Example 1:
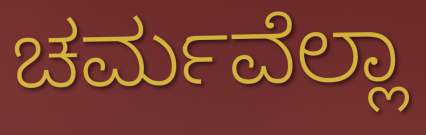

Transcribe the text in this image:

ಚರ್ಮವೆಲ್ಲಾ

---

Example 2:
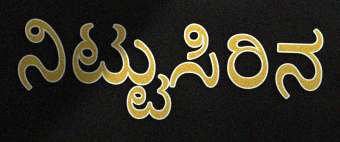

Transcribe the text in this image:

ನಿಟ್ಟುಸಿರಿನ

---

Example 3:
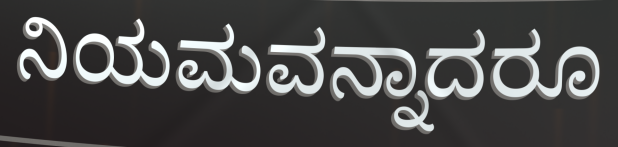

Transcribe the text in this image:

ನಿಯಮವನ್ನಾದರೂ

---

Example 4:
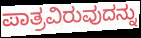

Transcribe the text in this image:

ಪಾತ್ರವಿರುವುದನ್ನು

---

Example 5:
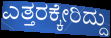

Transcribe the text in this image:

ಎತ್ತರಕ್ಕೇರಿದ್ದು